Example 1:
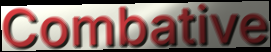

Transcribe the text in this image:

Combative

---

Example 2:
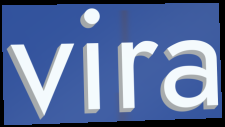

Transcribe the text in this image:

vira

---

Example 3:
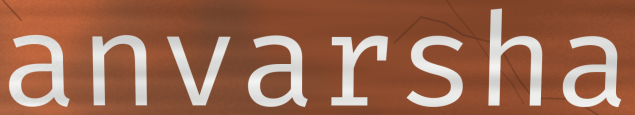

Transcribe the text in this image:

anvarsha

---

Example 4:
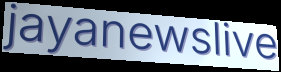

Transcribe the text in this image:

jayanewslive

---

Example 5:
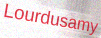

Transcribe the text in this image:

Lourdusamy